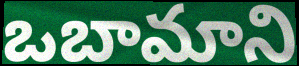
ఒబామాని